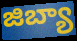
జిబ్యా